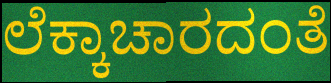
ಲೆಕ್ಕಾಚಾರದಂತೆ